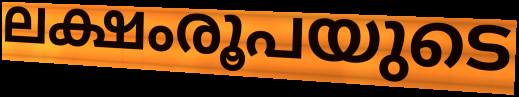
ലക്ഷംരൂപയുടെ